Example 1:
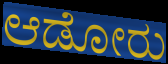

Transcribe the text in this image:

ಆಡೋರು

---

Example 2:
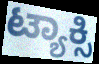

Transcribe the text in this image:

ಟ್ಯಾಕ್ಸಿ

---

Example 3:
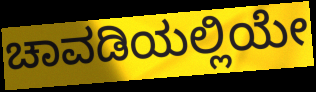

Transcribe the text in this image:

ಚಾವಡಿಯಲ್ಲಿಯೇ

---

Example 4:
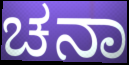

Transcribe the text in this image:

ಚನಾ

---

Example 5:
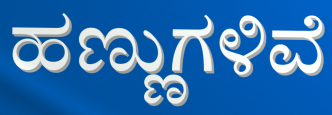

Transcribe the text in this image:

ಹಣ್ಣುಗಳಿವೆ